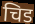
चिड